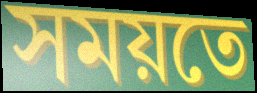
সময়তে